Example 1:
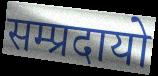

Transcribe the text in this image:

सम्प्रदायो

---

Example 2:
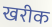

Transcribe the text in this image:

खरीक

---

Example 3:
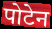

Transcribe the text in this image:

पोटेन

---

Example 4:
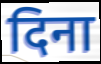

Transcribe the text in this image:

दिना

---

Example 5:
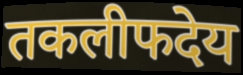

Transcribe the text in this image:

तकलीफदेय